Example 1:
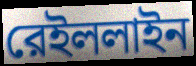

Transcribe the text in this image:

রেইললাইন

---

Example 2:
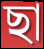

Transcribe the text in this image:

ছা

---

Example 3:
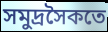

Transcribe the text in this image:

সমুদ্রসৈকতে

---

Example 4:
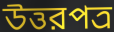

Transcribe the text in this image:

উত্তরপত্র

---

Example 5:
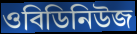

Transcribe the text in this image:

ওবিডিনিউজ